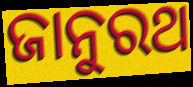
ଜାନୁରଥ